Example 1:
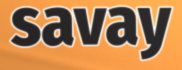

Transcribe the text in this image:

savay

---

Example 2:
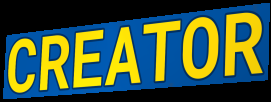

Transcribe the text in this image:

CREATOR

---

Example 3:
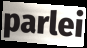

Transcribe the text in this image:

parlei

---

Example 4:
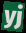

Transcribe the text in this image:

yj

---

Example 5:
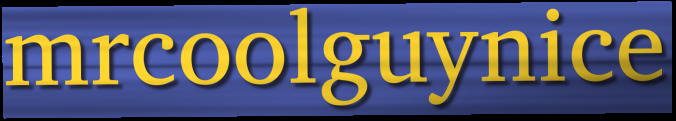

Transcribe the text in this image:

mrcoolguynice